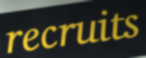
recruits